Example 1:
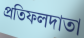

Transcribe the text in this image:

প্রতিফলদাতা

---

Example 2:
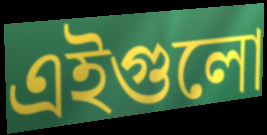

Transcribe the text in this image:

এইগুলো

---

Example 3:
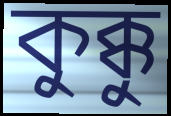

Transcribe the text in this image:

কুক্কু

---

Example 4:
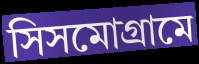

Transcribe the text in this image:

সিসমোগ্রামে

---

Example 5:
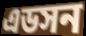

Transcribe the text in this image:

এডসন